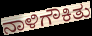
ನಾಳಿಗೌಕಿತು